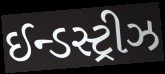
ઈન્ડસ્ટ્રીઝ